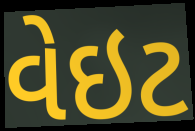
વેઇટ